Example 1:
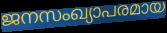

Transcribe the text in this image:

ജനസംഖ്യാപരമായ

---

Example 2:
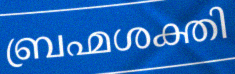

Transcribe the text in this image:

ബ്രഹ്മശക്തി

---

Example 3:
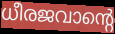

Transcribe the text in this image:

ധീരജവാന്റെ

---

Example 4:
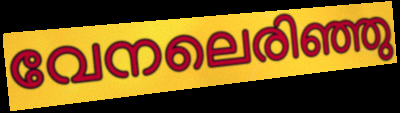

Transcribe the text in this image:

വേനലെരിഞ്ഞു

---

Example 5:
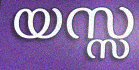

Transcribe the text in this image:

യസ്സ